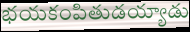
భయకంపితుడయ్యాడు